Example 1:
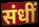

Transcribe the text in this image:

संधीं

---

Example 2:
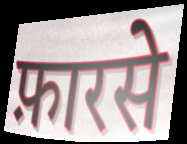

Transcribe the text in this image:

फ़ारसे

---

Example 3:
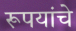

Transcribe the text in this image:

रूपयांचे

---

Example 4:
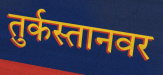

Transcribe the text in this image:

तुर्कस्तानवर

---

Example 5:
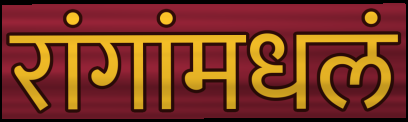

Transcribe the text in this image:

रांगांमधलं